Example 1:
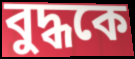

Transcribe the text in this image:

বুদ্ধকে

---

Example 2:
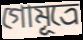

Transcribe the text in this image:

গোমূত্রে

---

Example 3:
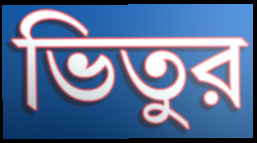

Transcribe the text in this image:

ভিতুর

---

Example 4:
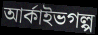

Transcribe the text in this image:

আর্কাইভগল্প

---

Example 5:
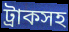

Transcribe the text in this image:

ট্রাকসহ